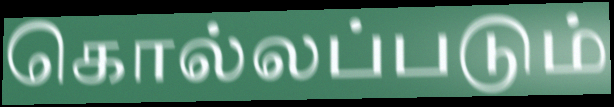
கொல்லப்படும்